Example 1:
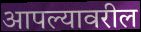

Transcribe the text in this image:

आपल्यावरील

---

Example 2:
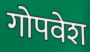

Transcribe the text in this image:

गोपवेश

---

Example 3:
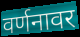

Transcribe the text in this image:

वर्णनावर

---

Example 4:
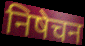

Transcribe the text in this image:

निषेचन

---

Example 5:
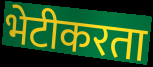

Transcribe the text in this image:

भेटीकरता